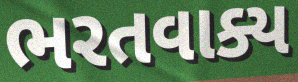
ભરતવાક્ય